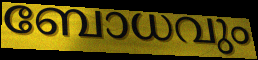
ബോധവും